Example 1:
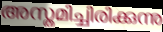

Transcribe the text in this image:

അസ്തമിച്ചിരിക്കുന്നു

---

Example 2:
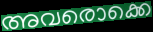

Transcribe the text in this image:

അവരൊക്കെ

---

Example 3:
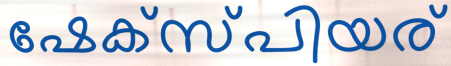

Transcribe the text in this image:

ഷേക്സ്പിയര്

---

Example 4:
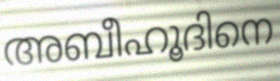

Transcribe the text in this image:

അബീഹൂദിനെ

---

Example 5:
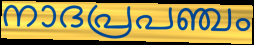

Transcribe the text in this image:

നാദപ്രപഞ്ചം